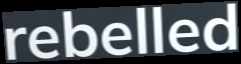
rebelled